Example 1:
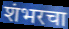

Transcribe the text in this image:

शंभरचा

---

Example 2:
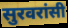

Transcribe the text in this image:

सुरवरांसी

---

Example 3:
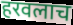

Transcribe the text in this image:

हरवलाच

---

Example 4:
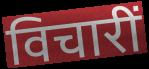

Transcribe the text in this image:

विचारीं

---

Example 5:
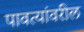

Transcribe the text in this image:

पावत्यांवरील